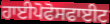
ਹਾਈਪੋਫੋਸਫਾਈਟ